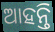
ଆହନ୍ତି